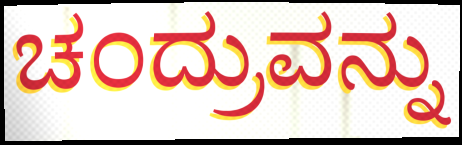
ಚಂದ್ರುವನ್ನು